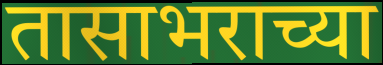
तासाभराच्या